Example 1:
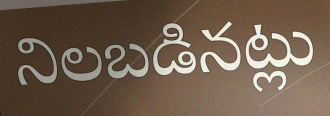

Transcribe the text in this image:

నిలబడినట్లు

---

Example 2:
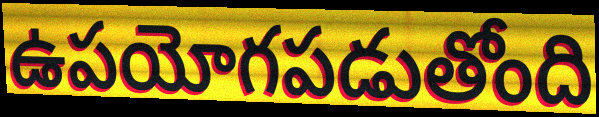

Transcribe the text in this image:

ఉపయోగపడుతోంది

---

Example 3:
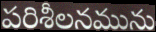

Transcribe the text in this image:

పరిశీలనమును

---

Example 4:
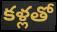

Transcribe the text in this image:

కళ్లతో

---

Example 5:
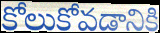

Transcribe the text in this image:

కోలుకోవడానికి